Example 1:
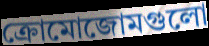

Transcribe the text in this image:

ক্রোমোজোমগুলো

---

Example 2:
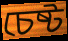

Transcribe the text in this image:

চেষ্ট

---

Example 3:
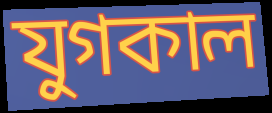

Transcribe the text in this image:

যুগকাল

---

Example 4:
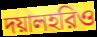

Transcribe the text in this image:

দয়ালহরিও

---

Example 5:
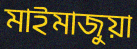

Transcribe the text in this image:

মাইমাজুয়া